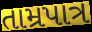
તામ્રપાત્ર